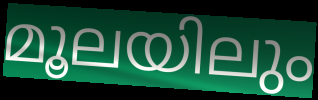
മൂലയിലും